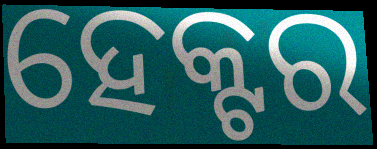
ହେକ୍ଟର